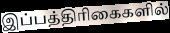
இப்பத்திரிகைகளில்